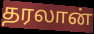
தரலான்